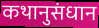
कथानुसंधान